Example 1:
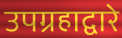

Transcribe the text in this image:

उपग्रहाद्वारे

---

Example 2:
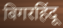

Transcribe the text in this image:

बिगरहिंदू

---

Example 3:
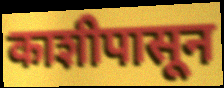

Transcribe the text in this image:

काशीपासून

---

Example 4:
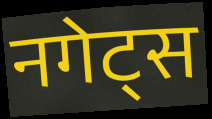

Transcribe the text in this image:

नगेट्स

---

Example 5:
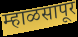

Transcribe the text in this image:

म्हाळसापूर